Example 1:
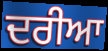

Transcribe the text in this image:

ਦਰੀਆ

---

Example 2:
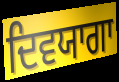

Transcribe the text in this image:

ਦਿਵਯਾਗਾ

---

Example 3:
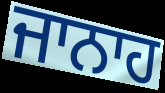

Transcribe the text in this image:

ਜਾਨਾਹ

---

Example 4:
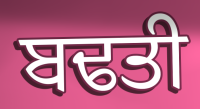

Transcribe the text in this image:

ਬਢਤੀ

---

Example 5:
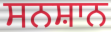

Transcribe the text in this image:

ਸਨਸ਼ਾਨ